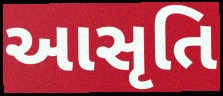
આસૃતિ